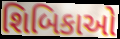
શિબિકાઓ